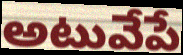
అటువేపే